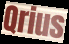
Qrius